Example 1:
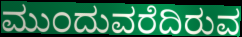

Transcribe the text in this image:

ಮುಂದುವರೆದಿರುವ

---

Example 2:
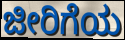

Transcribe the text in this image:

ಜೀರಿಗೆಯ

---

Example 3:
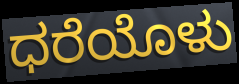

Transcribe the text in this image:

ಧರೆಯೊಳು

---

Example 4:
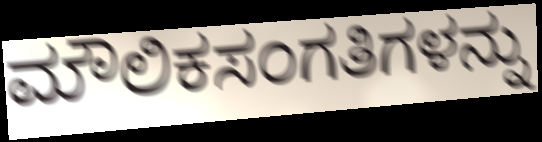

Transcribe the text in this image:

ಮೌಲಿಕಸಂಗತಿಗಳನ್ನು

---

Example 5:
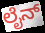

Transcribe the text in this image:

ಲೈನ್